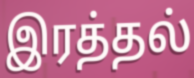
இரத்தல்